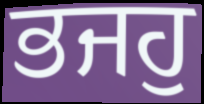
ਭਜਹੁ